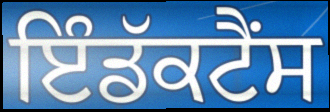
ਇੰਡੱਕਟੈਂਸ